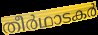
തീർഥാടകർ